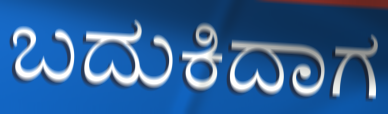
ಬದುಕಿದಾಗ